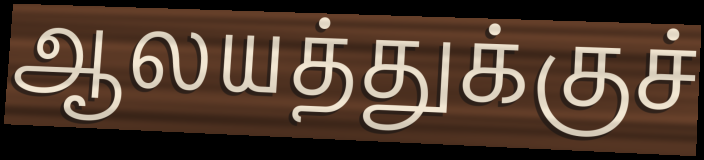
ஆலயத்துக்குச்